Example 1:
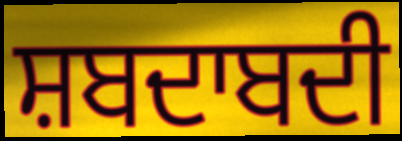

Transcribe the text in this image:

ਸ਼ਬਦਾਬਦੀ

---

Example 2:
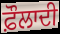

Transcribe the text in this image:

ਫ਼ੌਲਾਦੀ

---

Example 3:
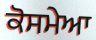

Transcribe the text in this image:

ਕੋਸਮੇਆ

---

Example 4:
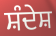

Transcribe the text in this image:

ਸ਼ੰਦੇਸ਼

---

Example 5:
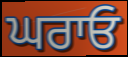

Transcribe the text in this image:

ਘਰਾਓ